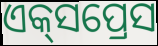
ଏକ୍‌ସପ୍ରେସ